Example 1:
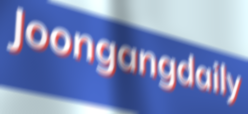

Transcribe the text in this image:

Joongangdaily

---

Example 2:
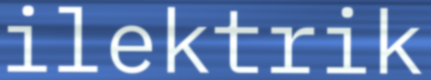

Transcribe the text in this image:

ilektrik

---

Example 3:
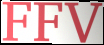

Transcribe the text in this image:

FFV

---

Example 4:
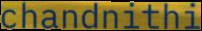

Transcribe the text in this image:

chandnithi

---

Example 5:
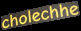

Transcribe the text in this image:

cholechhe